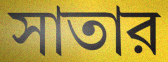
সাতার